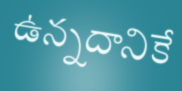
ఉన్నదానికే